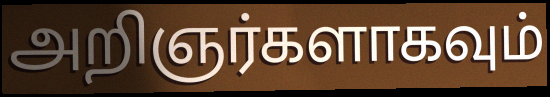
அறிஞர்களாகவும்